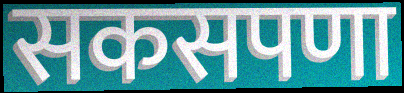
सकसपणा